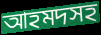
আহমদসহ